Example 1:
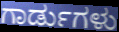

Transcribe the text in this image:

ಗಾರ್ಡುಗಳು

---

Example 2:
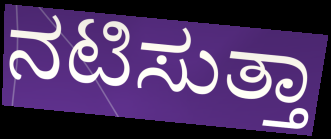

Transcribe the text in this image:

ನಟಿಸುತ್ತಾ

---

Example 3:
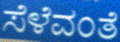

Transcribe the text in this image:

ಸೆಳೆವಂತೆ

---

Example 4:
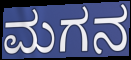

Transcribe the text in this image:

ಮಗನ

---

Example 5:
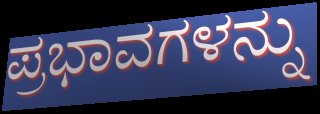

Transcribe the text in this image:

ಪ್ರಭಾವಗಳನ್ನು